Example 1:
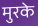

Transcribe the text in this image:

मुरके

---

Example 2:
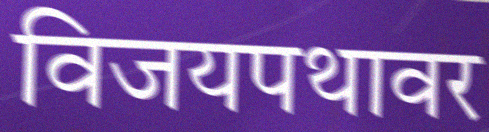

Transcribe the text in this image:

विजयपथावर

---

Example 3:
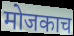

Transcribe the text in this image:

मोजकाच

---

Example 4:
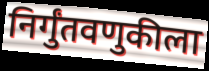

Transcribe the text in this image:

निर्गुंतवणुकीला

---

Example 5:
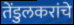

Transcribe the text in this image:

तेंडुलकरांचे